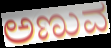
ಅಣುವ